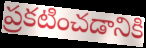
ప్రకటించడానికి